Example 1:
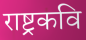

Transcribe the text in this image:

राष्ट्रकवि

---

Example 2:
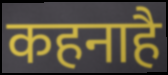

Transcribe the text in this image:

कहनाहै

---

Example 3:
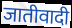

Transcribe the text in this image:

जातीवादी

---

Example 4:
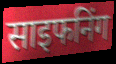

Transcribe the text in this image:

साइफनिंग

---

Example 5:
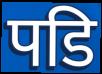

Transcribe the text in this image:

पडि